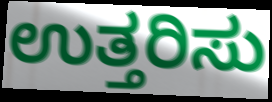
ಉತ್ತರಿಸು